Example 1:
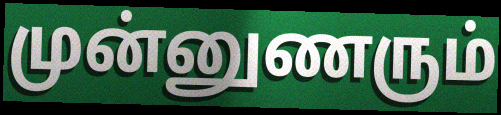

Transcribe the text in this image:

முன்னுணரும்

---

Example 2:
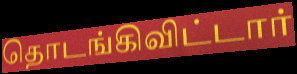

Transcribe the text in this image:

தொடங்கிவிட்டார்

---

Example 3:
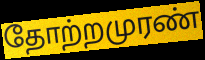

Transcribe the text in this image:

தோற்றமுரண்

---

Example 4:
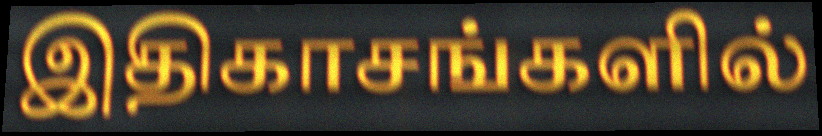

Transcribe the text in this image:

இதிகாசங்களில்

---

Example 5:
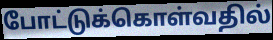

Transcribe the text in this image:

போட்டுக்கொள்வதில்